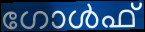
ഗോൾഫ്